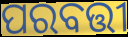
ପରବତ୍ତୀ